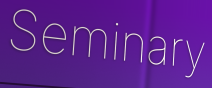
Seminary